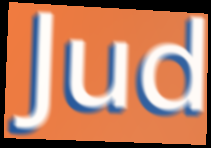
Jud